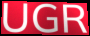
UGR